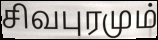
சிவபுரமும்